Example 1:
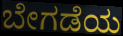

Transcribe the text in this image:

ಬೇಗಡೆಯ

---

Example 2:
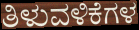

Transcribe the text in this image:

ತಿಳುವಳಿಕೆಗಳ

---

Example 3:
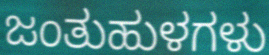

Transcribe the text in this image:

ಜಂತುಹುಳಗಳು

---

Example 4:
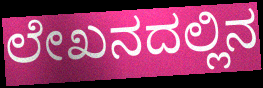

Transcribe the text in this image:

ಲೇಖನದಲ್ಲಿನ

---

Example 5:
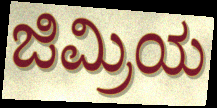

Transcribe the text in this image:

ಜಿಮ್ರಿಯ